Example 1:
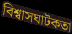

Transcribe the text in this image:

বিশ্বাসঘাটকতা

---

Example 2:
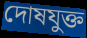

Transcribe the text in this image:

দোষযুক্ত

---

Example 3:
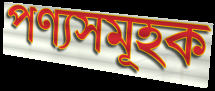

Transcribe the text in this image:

পণ্যসমূহক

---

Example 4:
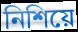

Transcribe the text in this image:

নিশিয়ে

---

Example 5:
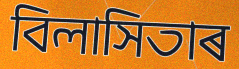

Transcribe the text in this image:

বিলাসিতাৰ